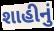
શાહીનું